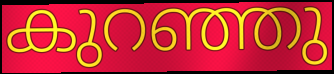
കുറഞ്ഞു